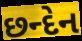
છન્દેન